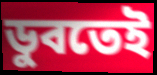
ডুবতেই